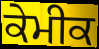
ਕੇਮੀਕ